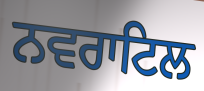
ਨਵਰਾਟਿਲ